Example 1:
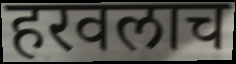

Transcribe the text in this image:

हरवलाच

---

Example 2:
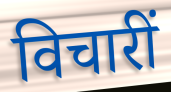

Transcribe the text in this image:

विचारीं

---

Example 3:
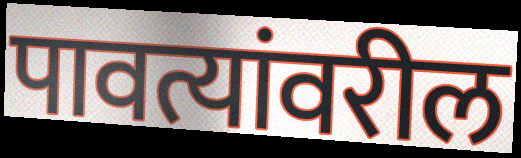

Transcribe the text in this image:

पावत्यांवरील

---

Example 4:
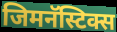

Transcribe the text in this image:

जिमनॅस्टिक्स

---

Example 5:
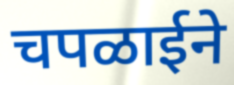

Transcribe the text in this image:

चपळाईने